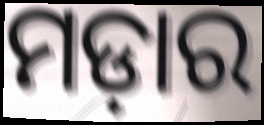
ମଡ଼ାର